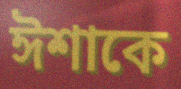
ঈশাকে